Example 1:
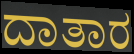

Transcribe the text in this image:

ದಾತಾರ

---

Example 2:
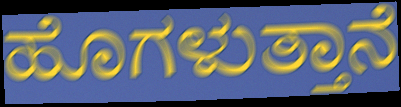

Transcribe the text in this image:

ಹೊಗಳುತ್ತಾನೆ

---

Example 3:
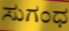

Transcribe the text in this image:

ಸುಗಂಧ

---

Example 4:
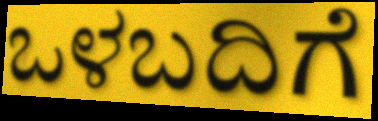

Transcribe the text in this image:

ಒಳಬದಿಗೆ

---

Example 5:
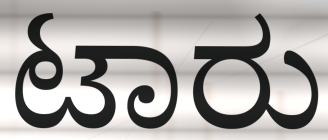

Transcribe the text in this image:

ಟಾರು